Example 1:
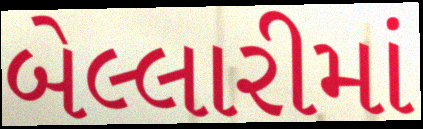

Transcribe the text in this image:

બેલ્લારીમાં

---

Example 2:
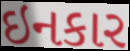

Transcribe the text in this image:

ઇનકાર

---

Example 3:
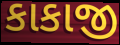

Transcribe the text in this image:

કાકાજી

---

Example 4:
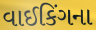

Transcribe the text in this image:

વાઈકિંગના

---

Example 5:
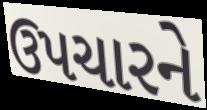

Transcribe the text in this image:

ઉપચારને